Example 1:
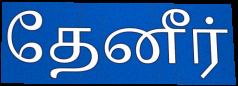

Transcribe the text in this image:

தேனீர்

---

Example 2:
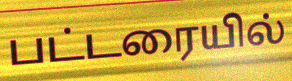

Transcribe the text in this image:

பட்டரையில்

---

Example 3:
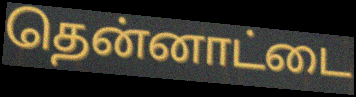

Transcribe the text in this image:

தென்னாட்டை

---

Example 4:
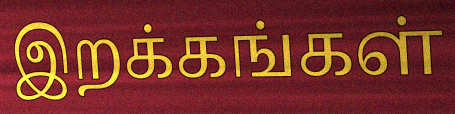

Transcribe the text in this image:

இறக்கங்கள்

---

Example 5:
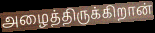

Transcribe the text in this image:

அழைத்திருக்கிறான்